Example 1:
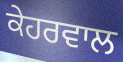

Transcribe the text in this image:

ਕੇਹਰਵਾਲ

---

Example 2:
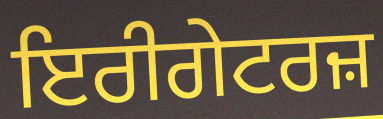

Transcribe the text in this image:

ਇਰੀਗੇਟਰਜ਼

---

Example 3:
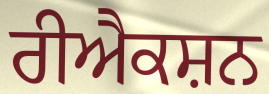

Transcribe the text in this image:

ਰੀਐਕਸ਼ਨ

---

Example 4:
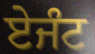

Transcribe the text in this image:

ਏਜੰਟ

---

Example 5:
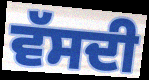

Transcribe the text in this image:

ਵੱਸਦੀ